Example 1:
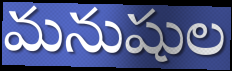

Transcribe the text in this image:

మనుషుల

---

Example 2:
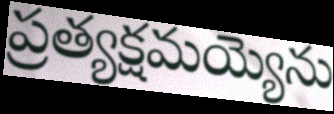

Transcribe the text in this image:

ప్రత్యక్షమయ్యెను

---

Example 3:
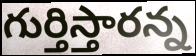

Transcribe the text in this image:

గుర్తిస్తారన్న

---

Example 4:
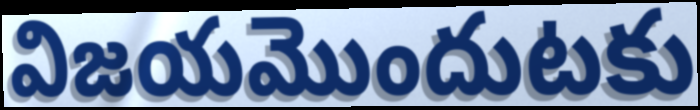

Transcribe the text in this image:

విజయమొందుటకు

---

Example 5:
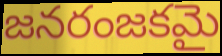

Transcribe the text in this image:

జనరంజకమై